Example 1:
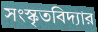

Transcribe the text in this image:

সংস্কৃতবিদ্যার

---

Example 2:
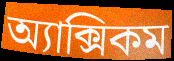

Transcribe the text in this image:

অ্যাক্সিকম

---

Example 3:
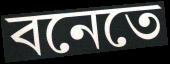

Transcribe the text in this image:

বনেতে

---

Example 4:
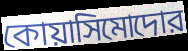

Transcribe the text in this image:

কোয়াসিমোদোর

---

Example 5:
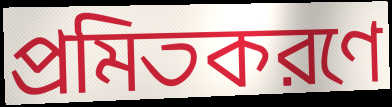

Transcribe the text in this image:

প্রমিতকরণে